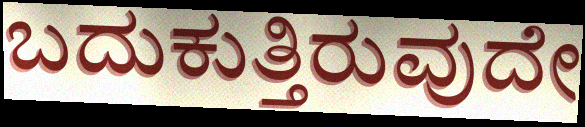
ಬದುಕುತ್ತಿರುವುದೇ